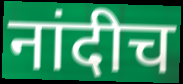
नांदीच